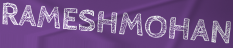
RAMESHMOHAN